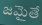
జమైతే